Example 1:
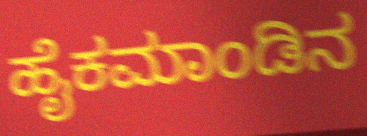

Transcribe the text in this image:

ಹೈಕಮಾಂಡಿನ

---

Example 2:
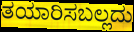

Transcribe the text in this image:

ತಯಾರಿಸಬಲ್ಲದು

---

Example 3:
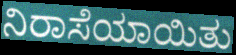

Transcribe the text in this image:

ನಿರಾಸೆಯಾಯಿತು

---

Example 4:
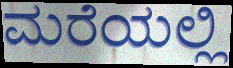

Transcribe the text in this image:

ಮರೆಯಲ್ಲಿ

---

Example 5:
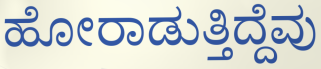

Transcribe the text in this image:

ಹೋರಾಡುತ್ತಿದ್ದೆವು